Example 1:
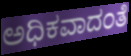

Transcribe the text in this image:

ಅಧಿಕವಾದಂತೆ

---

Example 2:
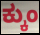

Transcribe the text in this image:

ಕ್ಕುಂ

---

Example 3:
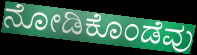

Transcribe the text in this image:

ನೋಡಿಕೊಂಡೆವು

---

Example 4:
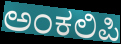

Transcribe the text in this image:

ಅಂಕಲಿಪಿ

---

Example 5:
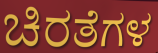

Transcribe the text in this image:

ಚಿರತೆಗಳ